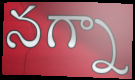
నగ్నా